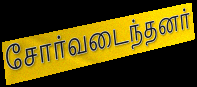
சோர்வடைந்தனர்